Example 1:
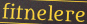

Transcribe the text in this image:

fitnelere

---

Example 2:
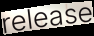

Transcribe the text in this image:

release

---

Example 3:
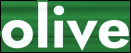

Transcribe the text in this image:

olive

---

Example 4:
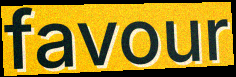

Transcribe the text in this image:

favour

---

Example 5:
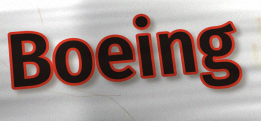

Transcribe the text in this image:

Boeing